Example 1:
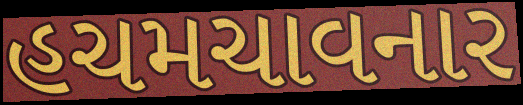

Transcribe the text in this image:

હચમચાવનાર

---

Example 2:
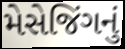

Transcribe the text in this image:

મેસેજિંગનું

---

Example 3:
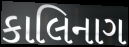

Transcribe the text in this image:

કાલિનાગ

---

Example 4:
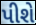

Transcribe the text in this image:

પીશે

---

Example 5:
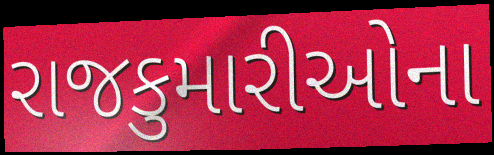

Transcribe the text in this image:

રાજકુમારીઓના